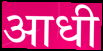
आधी